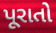
પૂરાતો